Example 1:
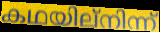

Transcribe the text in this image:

കഥയില്നിന്ന്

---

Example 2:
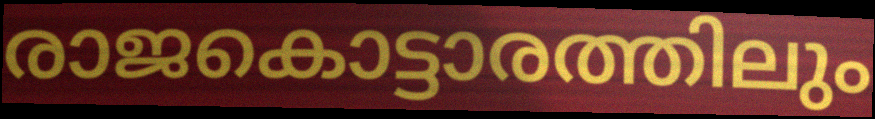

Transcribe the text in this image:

രാജകൊട്ടാരത്തിലും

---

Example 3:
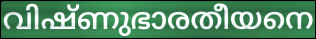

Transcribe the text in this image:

വിഷ്ണുഭാരതീയനെ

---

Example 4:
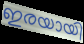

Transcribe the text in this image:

ഇരയായി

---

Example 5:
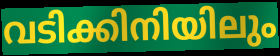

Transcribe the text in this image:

വടിക്കിനിയിലും